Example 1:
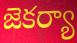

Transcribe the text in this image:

జెకర్యా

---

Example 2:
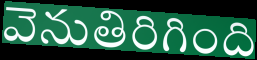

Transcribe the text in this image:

వెనుతిరిగింది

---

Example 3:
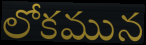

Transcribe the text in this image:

లోకమున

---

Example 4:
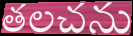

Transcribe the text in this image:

తలచను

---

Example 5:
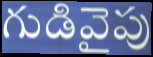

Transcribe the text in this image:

గుడివైపు